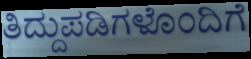
ತಿದ್ದುಪಡಿಗಳೊಂದಿಗೆ